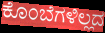
ಕೊಂಬೆಗಳಿಲ್ಲದ